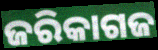
ଜରିକାଗଜ